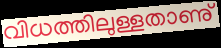
വിധത്തിലുള്ളതാണു്